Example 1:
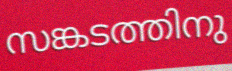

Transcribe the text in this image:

സങ്കടത്തിനു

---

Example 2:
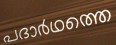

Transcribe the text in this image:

പദാർഥത്തെ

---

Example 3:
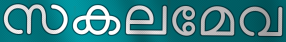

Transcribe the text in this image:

സകലമേവ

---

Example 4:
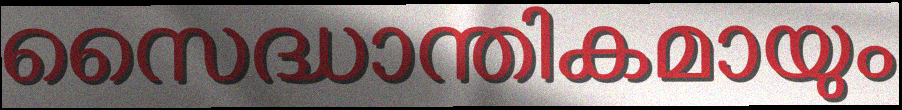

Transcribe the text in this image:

സൈദ്ധാന്തികമായും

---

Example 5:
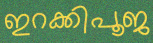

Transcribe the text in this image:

ഇറക്കിപൂജ